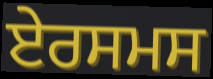
ਏਰਸਮਸ